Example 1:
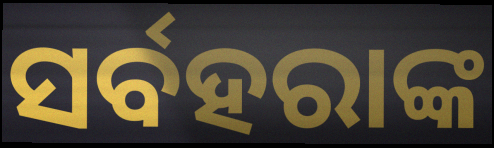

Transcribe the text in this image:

ସର୍ବହରାଙ୍କ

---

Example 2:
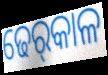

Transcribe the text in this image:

ଢେର୍‌କାଳ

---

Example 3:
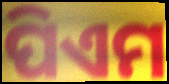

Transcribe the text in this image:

ପିଏମ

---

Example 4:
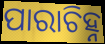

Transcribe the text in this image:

ପାରାଚିହ୍ନ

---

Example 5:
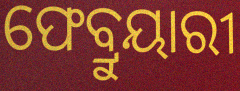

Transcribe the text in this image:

ଫେବ୍ରୁୟାରୀ